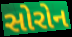
સોરોન